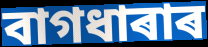
বাগধাৰাৰ